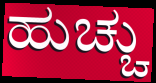
ಹುಚ್ಚು